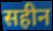
सहीन